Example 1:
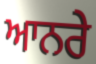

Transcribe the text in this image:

ਆਨਰੇ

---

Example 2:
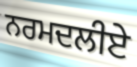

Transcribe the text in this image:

ਨਰਮਦਲੀਏ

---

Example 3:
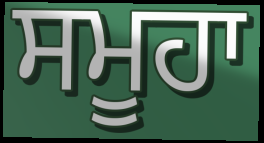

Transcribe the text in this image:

ਸਮੂਹਾ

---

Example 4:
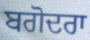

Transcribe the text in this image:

ਬਗੋਦਰਾ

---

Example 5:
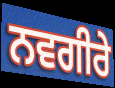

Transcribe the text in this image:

ਨਵਗੀਰੇ